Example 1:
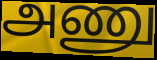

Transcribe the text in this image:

அணு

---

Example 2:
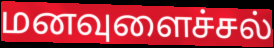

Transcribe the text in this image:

மனவுளைச்சல்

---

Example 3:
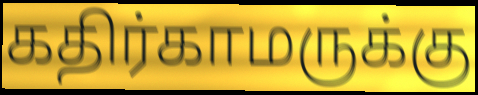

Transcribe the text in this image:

கதிர்காமருக்கு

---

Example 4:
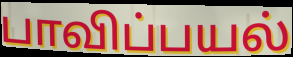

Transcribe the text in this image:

பாவிப்பயல்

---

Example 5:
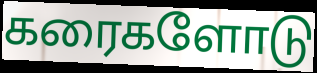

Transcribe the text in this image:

கரைகளோடு